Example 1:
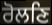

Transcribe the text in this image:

ਰੋਲਣਿ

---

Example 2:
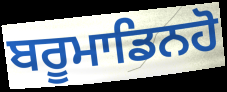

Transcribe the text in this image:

ਬਰੂਮਾਡਿਨਹੋ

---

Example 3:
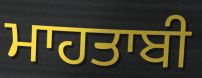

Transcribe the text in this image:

ਮਾਹਤਾਬੀ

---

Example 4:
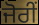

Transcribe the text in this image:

ਜੋਰੀਂ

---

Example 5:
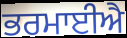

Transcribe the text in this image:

ਭਰਮਾਈਐ